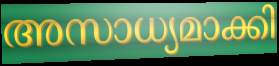
അസാധ്യമാക്കി